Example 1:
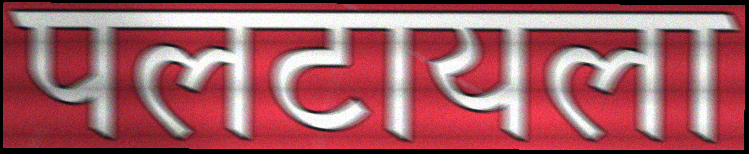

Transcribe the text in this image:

पलटायला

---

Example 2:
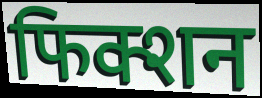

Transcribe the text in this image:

फिक्शन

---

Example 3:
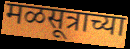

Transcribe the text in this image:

मळसूत्राच्या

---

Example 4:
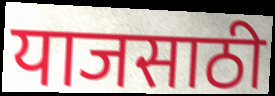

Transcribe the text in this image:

याजसाठी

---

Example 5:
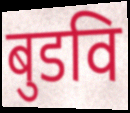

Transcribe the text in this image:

बुडवि